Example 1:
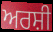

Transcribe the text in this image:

ਅਰਸ਼ੀ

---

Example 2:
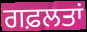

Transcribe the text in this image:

ਗਫ਼ਲਤਾਂ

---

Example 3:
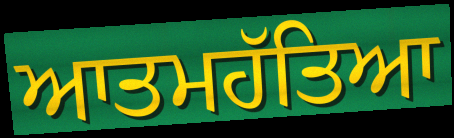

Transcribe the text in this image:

ਆਤਮਹੱਤਿਆ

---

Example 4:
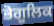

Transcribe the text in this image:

ਭੋਗੂਲਿਕ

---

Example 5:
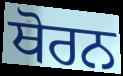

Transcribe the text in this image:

ਥੋਰਨ